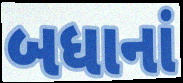
બધાનાં